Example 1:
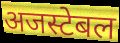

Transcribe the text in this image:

अजस्टेबल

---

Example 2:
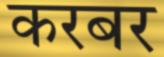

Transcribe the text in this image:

करबर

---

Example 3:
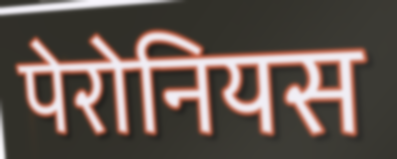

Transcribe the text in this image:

पेरोनियस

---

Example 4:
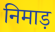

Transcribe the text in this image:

निमाड़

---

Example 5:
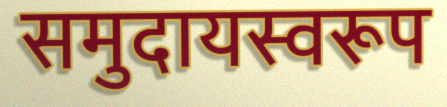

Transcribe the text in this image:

समुदायस्वरूप